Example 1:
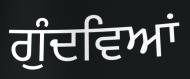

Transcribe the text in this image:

ਗੁੰਦਵਿਆਂ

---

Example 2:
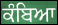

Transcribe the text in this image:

ਕੰਬਿਆ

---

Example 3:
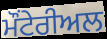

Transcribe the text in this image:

ਮੌਂਟੇਰੀਅਲ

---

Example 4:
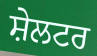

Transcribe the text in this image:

ਸ਼ੇਲਟਰ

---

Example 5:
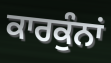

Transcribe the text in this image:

ਕਾਰਕੁੰਨਾਂ